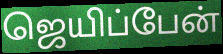
ஜெயிப்பேன்